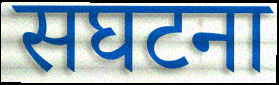
सघटना